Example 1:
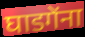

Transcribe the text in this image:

घाडगेंना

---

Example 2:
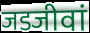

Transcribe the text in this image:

जडजीवां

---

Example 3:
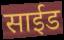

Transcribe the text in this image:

साईड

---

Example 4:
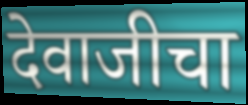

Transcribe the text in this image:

देवाजीचा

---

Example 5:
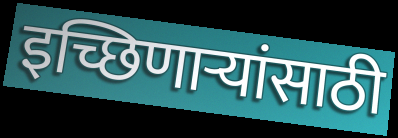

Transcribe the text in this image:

इच्छिणाऱ्यांसाठी